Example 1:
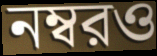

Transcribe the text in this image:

নম্বরও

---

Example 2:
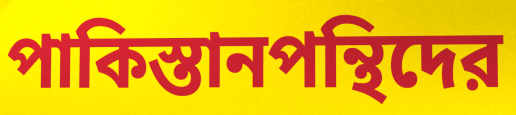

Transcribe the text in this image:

পাকিস্তানপন্থিদের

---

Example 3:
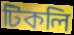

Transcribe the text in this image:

টিকলি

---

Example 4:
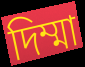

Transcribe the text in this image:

দিম্মা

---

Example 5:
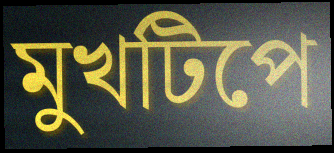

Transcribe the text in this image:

মুখটিপে